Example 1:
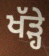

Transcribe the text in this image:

ਖੱੜ੍ਹੇ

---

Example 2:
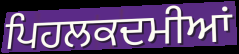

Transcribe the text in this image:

ਪਿਹਲਕਦਮੀਆਂ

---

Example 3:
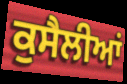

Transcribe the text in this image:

ਕੁਸੈਲੀਆਂ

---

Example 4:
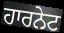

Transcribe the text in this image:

ਹਾਰਨੇਟ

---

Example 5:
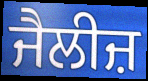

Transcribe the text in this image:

ਜੈਲੀਜ਼